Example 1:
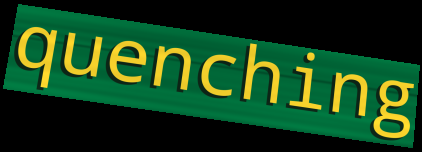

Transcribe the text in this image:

quenching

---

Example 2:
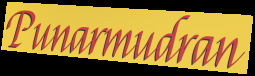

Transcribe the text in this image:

Punarmudran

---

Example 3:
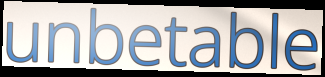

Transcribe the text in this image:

unbetable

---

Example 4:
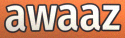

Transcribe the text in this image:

awaaz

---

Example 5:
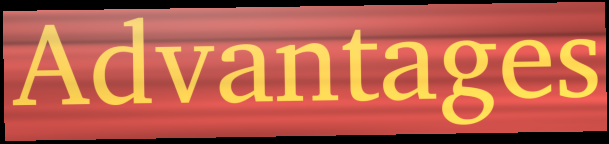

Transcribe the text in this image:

Advantages